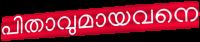
പിതാവുമായവനെ